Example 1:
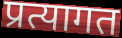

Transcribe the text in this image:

प्रत्यागत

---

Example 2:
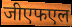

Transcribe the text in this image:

जीएफएल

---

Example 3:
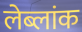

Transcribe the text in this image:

लेब्लांक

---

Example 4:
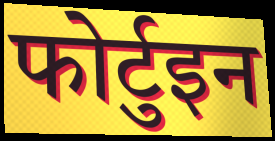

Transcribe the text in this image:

फोर्टुइन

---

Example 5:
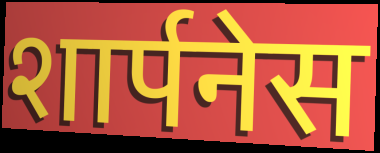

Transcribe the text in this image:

शार्पनेस